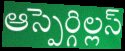
ఆస్పెర్గిల్లస్